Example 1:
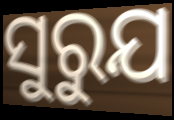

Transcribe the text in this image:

ସୁରୁଯ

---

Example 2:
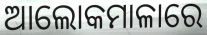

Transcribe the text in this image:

ଆଲୋକମାଳାରେ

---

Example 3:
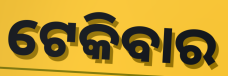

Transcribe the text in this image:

ଟେକିବାର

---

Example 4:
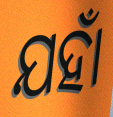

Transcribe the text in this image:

ଯହାଁ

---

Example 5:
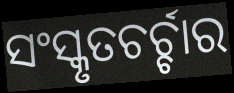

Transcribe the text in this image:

ସଂସ୍କୃତଚର୍ଚ୍ଚାର